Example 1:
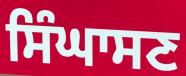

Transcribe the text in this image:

ਸਿੰਘਾਸਣ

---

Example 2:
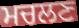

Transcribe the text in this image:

ਮਚਲਣ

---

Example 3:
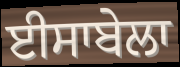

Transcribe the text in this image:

ਈਸਾਬੇਲਾ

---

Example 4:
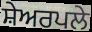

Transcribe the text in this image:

ਸ਼ੇਅਰਪਲੇ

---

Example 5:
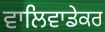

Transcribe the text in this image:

ਵਾਲਿਵਾਡੇਕਰ